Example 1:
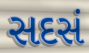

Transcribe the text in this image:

સદસં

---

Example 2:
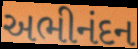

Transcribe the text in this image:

અભીનંદન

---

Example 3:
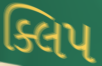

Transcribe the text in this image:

ક્લિપ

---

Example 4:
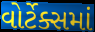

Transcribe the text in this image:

વોર્ટેક્સમાં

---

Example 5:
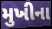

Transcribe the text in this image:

મુખીના